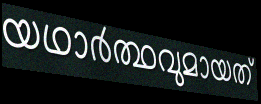
യഥാർത്ഥവുമായത്